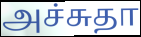
அச்சுதா